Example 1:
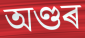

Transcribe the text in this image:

অণ্ডৰ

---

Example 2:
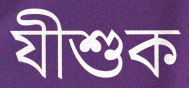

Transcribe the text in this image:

যীশুক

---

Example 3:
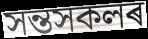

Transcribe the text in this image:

সন্তসকলৰ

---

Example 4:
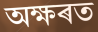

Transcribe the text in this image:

অক্ষৰত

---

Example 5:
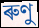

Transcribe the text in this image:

ৰুণু